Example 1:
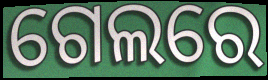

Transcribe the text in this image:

ଗେଲରେ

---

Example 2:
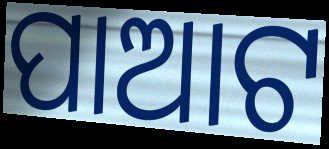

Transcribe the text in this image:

ପାଆଟ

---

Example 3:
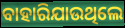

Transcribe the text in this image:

ବାହାରିଯାଉଥିଲେ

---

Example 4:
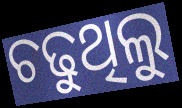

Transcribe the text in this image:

ଚଢୁଥିଲୁ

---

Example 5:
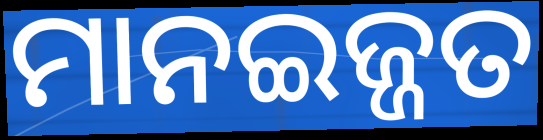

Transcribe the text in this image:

ମାନଇଜ୍ଜତ